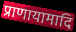
प्राणायामादि